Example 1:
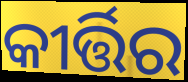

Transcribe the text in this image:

କୀର୍ତ୍ତିର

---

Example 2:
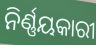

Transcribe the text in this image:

ନିର୍ଣ୍ଣୟକାରୀ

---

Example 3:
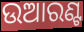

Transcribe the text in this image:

ଉଆରଣ୍ଟ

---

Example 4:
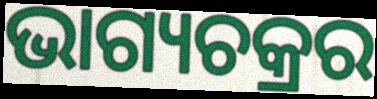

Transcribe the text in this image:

ଭାଗ୍ୟଚକ୍ରର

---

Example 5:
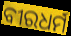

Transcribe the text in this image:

ବୀରଧର୍ମ